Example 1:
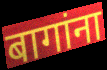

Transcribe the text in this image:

बागांना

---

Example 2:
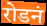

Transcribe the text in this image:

रोडनं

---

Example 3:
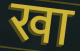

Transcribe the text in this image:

खा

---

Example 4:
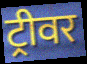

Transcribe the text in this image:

ट्रीवर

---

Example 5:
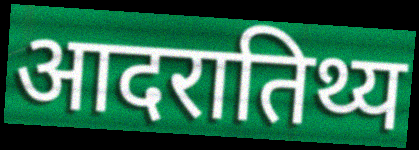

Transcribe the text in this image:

आदरातिथ्य